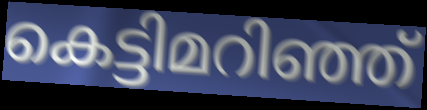
കെട്ടിമറിഞ്ഞ്